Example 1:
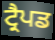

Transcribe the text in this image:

ਟ੍ਰੈਪਡ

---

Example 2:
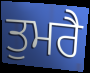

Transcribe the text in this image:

ਤੁਮਰੈ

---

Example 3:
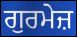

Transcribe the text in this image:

ਗੁਰਮੇਜ਼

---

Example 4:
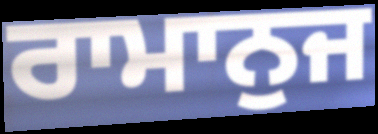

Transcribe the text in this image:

ਰਾਮਾਨੁਜ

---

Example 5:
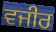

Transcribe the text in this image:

ਵਜੀਰ